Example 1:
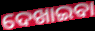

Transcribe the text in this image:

ଦେଖାଇବା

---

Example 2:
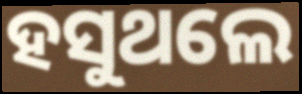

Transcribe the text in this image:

ହସୁଥଲେ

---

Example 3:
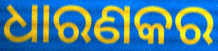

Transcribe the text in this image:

ଧାରଣକର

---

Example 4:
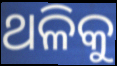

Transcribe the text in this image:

ଥଳିକୁ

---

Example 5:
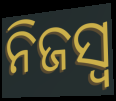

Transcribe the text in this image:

ନିଜସ୍ୱ